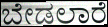
ಬೇಡಲಾರೆ